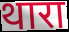
थारा